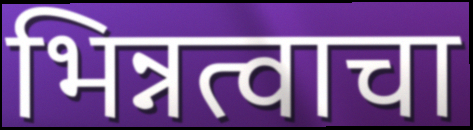
भिन्नत्वाचा